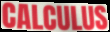
CALCULUS